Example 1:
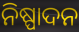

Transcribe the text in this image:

ନିଷ୍ପାଦନ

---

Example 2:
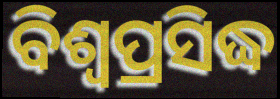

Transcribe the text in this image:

ବିଶ୍ଵପ୍ରସିଦ୍ଧ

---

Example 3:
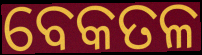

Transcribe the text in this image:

ବେକତଳ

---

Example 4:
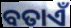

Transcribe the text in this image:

ବତାଏଁ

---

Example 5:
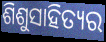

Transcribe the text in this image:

ଶିଶୁସାହିତ୍ୟର